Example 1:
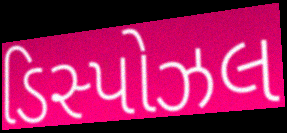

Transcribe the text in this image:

ડિસ્પોઝલ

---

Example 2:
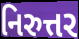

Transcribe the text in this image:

નિરુત્તર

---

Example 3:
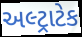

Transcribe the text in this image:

અલ્ટ્રાટેક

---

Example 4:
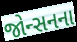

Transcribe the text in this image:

જોન્સનના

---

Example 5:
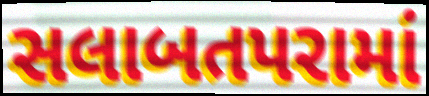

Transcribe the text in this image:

સલાબતપરામાં